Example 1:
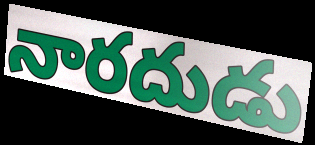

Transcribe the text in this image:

నారదుడు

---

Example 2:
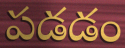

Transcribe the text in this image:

పడడం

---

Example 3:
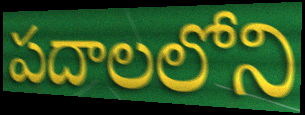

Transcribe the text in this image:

పదాలలోని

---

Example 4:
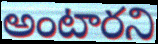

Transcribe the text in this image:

అంటారని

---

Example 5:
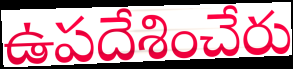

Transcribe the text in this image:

ఉపదేశించేరు